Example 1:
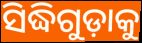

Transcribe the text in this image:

ସିଦ୍ଧିଗୁଡ଼ାକୁ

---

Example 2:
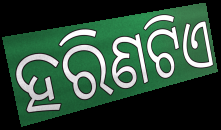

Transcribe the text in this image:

ହରିଣଟିଏ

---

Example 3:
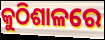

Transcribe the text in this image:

କୁଠିଶାଳରେ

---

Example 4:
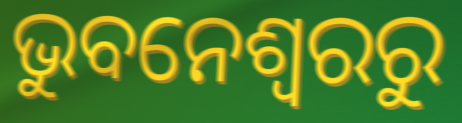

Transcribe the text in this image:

ଭୁବନେଶ୍ୱରରୁ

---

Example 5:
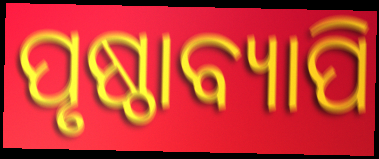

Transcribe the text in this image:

ପୃଷ୍ଠାବ୍ୟାପି